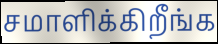
சமாளிக்கிறீங்க